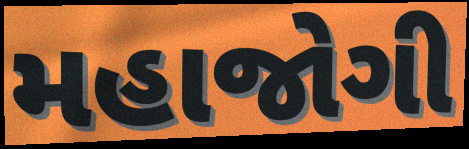
મહાજોગી